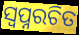
ସ୍ୱପ୍ନରଚିତ